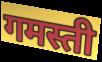
गमस्ती